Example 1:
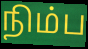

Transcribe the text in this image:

நிம்ப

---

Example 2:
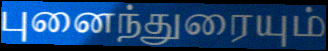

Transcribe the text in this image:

புனைந்துரையும்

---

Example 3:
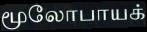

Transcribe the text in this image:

மூலோபாயக்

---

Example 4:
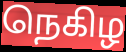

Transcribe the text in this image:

நெகிழ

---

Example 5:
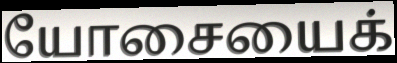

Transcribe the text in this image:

யோசையைக்